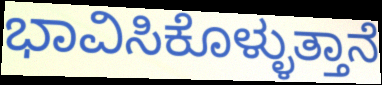
ಭಾವಿಸಿಕೊಳ್ಳುತ್ತಾನೆ